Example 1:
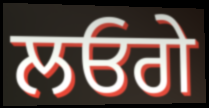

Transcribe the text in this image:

ਲਓਗੇ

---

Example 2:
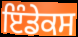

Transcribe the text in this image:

ਇੰਡੇਕਸ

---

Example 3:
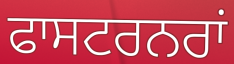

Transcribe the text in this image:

ਫਾਸਟਰਨਰਾਂ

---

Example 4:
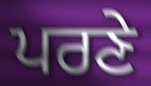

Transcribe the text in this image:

ਪਰਣੇ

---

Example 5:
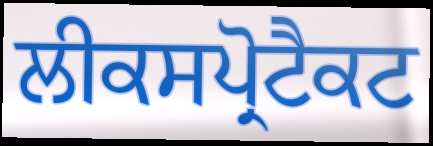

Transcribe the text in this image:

ਲੀਕਸਪ੍ਰੋਟੈਕਟ